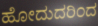
ಹೋದುದರಿಂದ